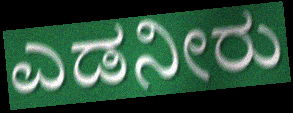
ಎಡನೀರು